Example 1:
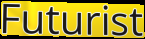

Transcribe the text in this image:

Futurist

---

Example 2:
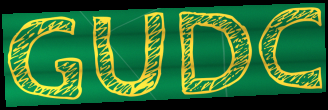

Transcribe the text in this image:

GUDC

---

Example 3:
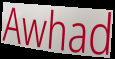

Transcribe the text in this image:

Awhad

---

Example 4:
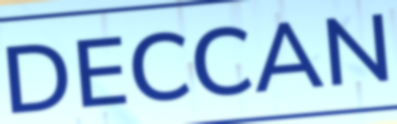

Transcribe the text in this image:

DECCAN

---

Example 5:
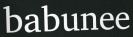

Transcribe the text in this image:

babunee